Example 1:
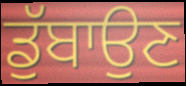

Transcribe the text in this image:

ਡੁੱਬਾਉਣ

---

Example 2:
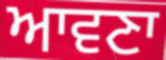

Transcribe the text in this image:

ਆਵਣਾ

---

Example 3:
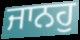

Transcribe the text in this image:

ਜਾਨਹੁ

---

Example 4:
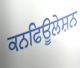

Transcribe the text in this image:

ਕਨਫਿਊਲੇਸ਼ਨ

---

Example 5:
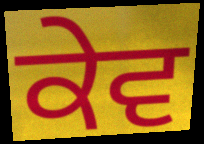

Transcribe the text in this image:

ਕੇਵ